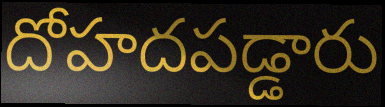
దోహదపడ్డారు